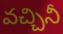
వచ్చినీ